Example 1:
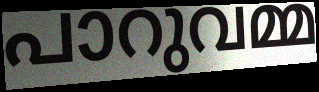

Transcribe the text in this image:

പാറുവമ്മ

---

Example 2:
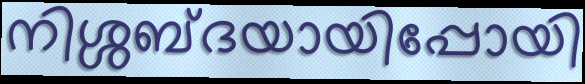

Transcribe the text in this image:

നിശ്ശബ്ദയായിപ്പോയി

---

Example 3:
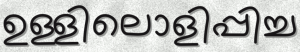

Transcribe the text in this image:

ഉള്ളിലൊളിപ്പിച്ച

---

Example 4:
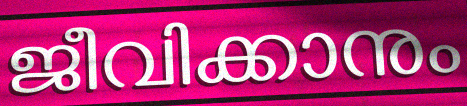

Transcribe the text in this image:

ജീവിക്കാനും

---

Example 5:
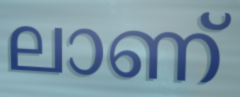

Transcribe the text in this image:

ലാണ്